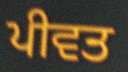
ਪੀਵਤ